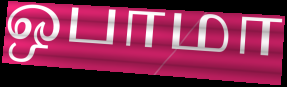
ஒபாமா